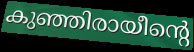
കുഞ്ഞിരായീന്റെ